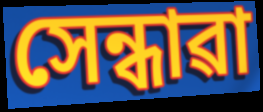
সেন্ধাৱা